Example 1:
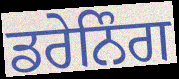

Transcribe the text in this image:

ਡਰੇਨਿੰਗ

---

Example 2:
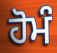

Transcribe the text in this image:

ਹੋਮੰ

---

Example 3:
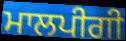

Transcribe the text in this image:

ਮਾਲਪੀਗੀ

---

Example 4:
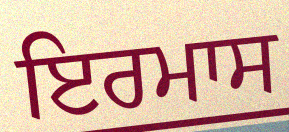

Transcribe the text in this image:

ਇਰਮਾਸ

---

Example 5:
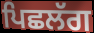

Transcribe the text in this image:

ਪਿਛਲੱਗ